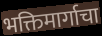
भक्तिमार्गाचा